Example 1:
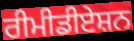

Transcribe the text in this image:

ਰੀਮੀਡੀਏਸ਼ਨ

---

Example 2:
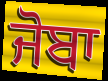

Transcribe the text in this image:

ਜੋਬਾ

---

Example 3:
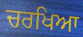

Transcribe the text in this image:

ਚਰਖਿਆ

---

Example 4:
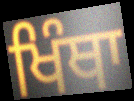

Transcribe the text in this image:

ਖਿੰਥਾ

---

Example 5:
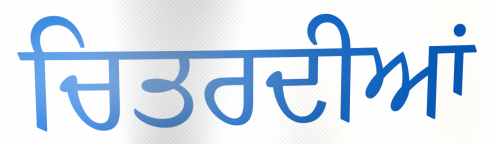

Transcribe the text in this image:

ਚਿਤਰਦੀਆਂ